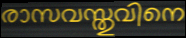
രാസവസ്തുവിനെ